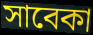
সাবেকা